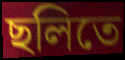
ছলিতে